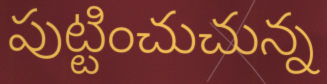
పుట్టించుచున్న